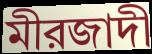
মীরজাদী